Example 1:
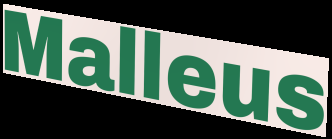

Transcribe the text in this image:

Malleus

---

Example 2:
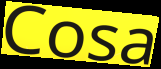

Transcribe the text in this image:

Cosa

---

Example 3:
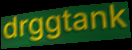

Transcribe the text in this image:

drggtank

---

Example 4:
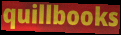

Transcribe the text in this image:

quillbooks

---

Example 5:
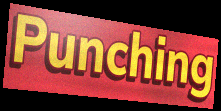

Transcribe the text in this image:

Punching